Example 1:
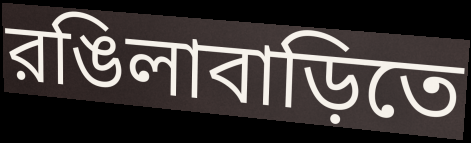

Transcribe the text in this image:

রঙিলাবাড়িতে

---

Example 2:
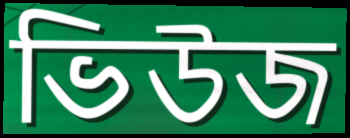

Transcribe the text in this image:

ভিউজ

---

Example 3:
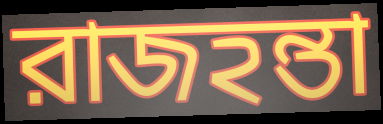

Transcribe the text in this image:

রাজহন্তা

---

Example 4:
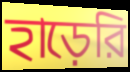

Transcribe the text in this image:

হাড়েরি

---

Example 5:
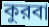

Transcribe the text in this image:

কুরবা